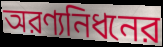
অরণ্যনিধনের